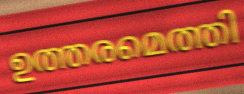
ഉത്തരമെത്തി